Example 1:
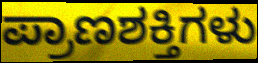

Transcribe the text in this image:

ಪ್ರಾಣಶಕ್ತಿಗಳು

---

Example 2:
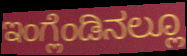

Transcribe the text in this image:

ಇಂಗ್ಲೆಂಡಿನಲ್ಲೂ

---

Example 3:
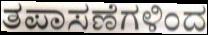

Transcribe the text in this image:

ತಪಾಸಣೆಗಳಿಂದ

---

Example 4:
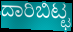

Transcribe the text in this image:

ದಾರಿಬಿಟ್ಟ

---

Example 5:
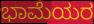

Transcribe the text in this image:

ಭಾಮೆಯರ